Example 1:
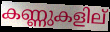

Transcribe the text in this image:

കണ്ണുകളില്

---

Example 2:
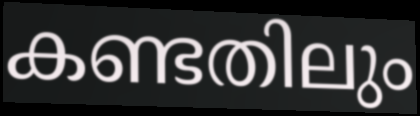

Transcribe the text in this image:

കണ്ടതിലും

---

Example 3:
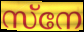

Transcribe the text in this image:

സ്നേ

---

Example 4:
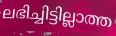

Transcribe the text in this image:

ലഭിച്ചിട്ടില്ലാത്ത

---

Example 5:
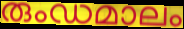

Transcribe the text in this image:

രുംഡമാലം